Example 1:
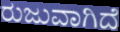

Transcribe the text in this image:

ರುಜುವಾಗಿದೆ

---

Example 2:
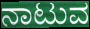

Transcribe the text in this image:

ನಾಟುವ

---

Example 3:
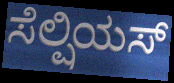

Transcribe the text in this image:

ಸೆಲ್ಷಿಯಸ್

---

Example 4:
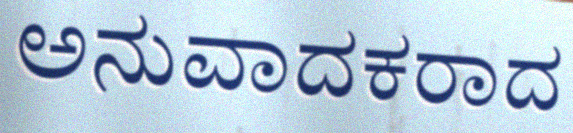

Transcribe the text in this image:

ಅನುವಾದಕರಾದ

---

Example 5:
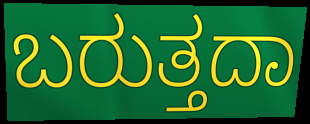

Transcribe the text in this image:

ಬರುತ್ತದಾ